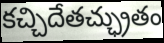
కచ్చిదేతచ్ఛ్రుతం